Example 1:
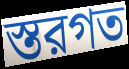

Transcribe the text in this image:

স্তরগত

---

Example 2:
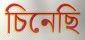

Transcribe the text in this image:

চিনেছি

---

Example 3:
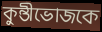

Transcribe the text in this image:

কুন্তীভোজকে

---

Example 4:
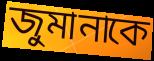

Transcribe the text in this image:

জুমানাকে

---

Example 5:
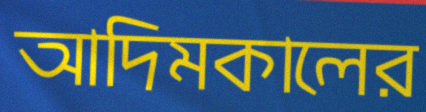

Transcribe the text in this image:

আদিমকালের